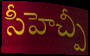
సీహెచ్పీ